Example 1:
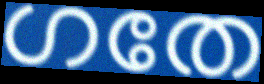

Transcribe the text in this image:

ഗതേ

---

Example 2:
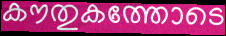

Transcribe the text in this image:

കൗതുകത്തോടെ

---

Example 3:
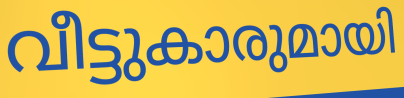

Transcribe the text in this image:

വീട്ടുകാരുമായി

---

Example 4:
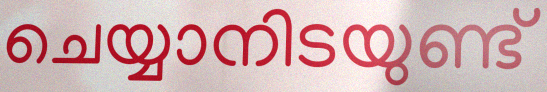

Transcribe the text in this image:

ചെയ്യാനിടയുണ്ട്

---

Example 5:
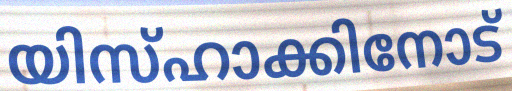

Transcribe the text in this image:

യിസ്ഹാക്കിനോട്